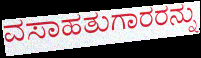
ವಸಾಹತುಗಾರರನ್ನು